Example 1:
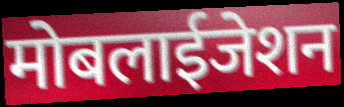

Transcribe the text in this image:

मोबलाईजेशन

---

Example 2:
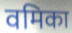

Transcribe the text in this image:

वमिका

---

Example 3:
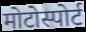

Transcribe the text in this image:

मोटोस्पोर्ट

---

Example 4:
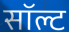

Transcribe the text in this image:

सॉल्ट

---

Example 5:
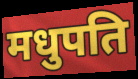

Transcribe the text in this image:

मधुपति